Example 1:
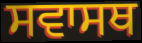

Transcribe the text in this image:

ਸਵਾਸਥ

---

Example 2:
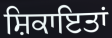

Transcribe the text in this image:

ਸ਼ਿਕਾਇਤਾਂ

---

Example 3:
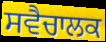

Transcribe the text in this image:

ਸਵੈਚਾਲਕ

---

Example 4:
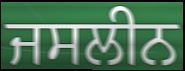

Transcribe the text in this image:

ਜਸਲੀਨ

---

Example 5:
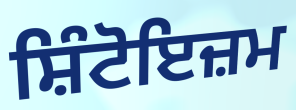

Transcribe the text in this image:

ਸ਼ਿੰਟੋਇਜ਼ਮ